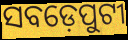
ସବଡ଼େପୁଟୀ